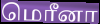
மெரீனா